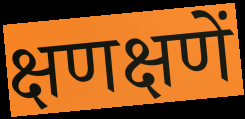
क्षणक्षणें